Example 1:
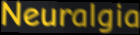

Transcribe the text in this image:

Neuralgia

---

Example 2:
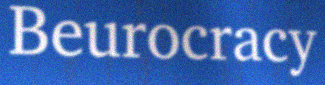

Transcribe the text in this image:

Beurocracy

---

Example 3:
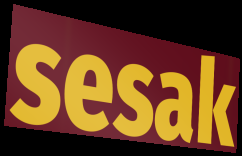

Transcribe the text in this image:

sesak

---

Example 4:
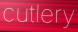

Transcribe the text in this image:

cutlery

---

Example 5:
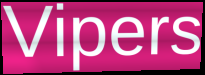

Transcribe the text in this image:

Vipers